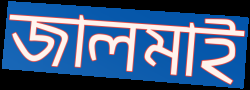
জালমাই